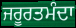
ਜਰੂਰਤਮੰਦਾ